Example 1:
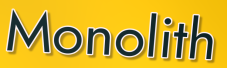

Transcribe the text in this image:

Monolith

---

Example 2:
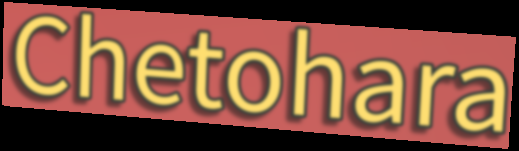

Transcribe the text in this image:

Chetohara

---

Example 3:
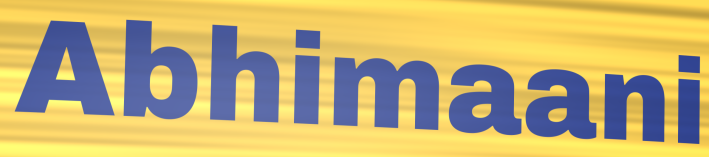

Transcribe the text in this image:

Abhimaani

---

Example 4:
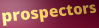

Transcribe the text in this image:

prospectors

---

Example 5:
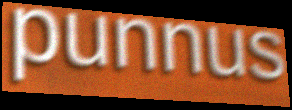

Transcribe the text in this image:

punnus